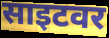
साइटवर